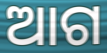
ଆଗ